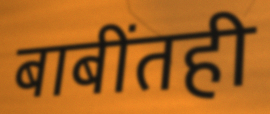
बाबींतही